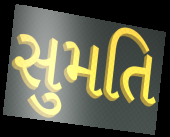
સુમતિ